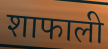
शाफाली